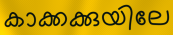
കാക്കക്കുയിലേ